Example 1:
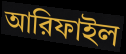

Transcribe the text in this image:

আরিফাইল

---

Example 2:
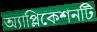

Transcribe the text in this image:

অ্যাপ্লিকেশনটি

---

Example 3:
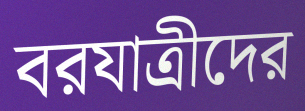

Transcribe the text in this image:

বরযাত্রীদের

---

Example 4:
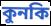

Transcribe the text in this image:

কুনকি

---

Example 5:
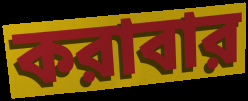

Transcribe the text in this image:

করাবার